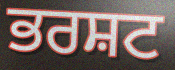
ਭਰਸ਼ਟ